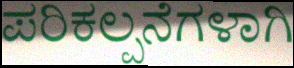
ಪರಿಕಲ್ಪನೆಗಳಾಗಿ